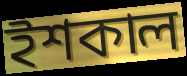
ইশকাল